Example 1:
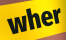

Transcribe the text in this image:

wher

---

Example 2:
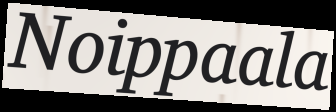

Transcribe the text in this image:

Noippaala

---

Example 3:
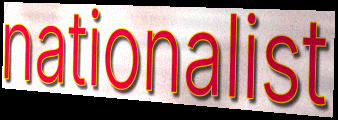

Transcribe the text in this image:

nationalist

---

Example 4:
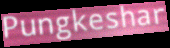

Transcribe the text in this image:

Pungkeshar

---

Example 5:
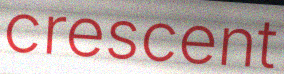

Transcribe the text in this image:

crescent